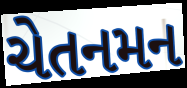
ચેતનમન